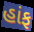
હાંફ